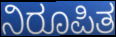
ನಿರೂಪಿತ